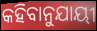
କହିବାନୁଯାୟୀ